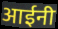
आईनी